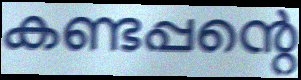
കണ്ടപ്പന്റെ